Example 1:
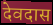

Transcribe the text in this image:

देवदास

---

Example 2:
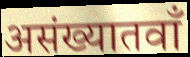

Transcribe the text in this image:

असंख्यातवाँ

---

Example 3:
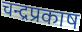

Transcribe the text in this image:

चन्द्रप्रकाष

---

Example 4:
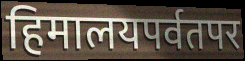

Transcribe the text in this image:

हिमालयपर्वतपर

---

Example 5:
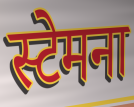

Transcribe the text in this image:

स्टेमना